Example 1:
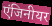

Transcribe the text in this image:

एंजिनीयर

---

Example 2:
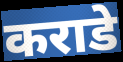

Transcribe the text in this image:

कराडे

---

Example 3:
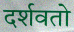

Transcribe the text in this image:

दर्शवतो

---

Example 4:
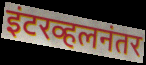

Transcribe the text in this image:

इंटरव्हलनंतर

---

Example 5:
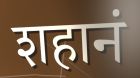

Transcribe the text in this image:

शहानं